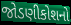
જોડણીકોશનો